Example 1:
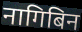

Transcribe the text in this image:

नागिबिन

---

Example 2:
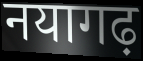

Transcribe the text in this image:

नयागढ़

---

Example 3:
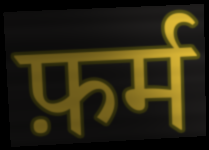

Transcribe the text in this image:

फ़र्म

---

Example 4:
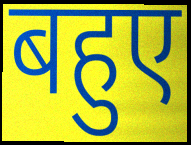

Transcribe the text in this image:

बहुए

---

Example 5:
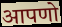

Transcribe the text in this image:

आपणो